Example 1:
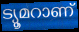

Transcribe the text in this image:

ട്യൂമറാണ്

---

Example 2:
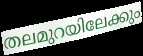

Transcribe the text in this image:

തലമുറയിലേക്കും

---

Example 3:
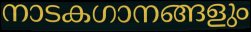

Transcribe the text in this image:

നാടകഗാനങ്ങളും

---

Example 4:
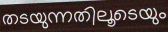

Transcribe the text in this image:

തടയുന്നതിലൂടെയും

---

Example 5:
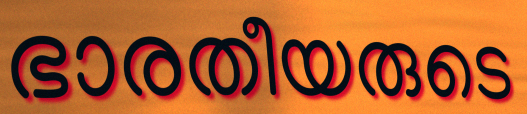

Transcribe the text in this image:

ഭാരതീയരുടെ